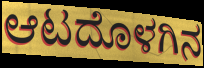
ಆಟದೊಳಗಿನ